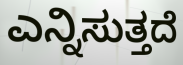
ಎನ್ನಿಸುತ್ತದೆ